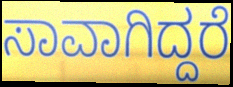
ಸಾವಾಗಿದ್ದರೆ